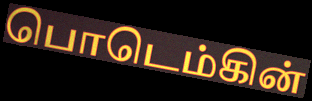
பொடெம்கின்